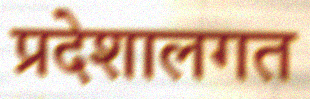
प्रदेशालगत